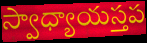
స్వాధ్యాయస్తప